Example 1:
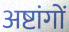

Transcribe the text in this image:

अष्टांगों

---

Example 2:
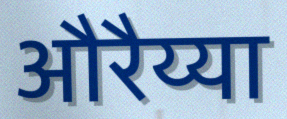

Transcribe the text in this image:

औरैय्या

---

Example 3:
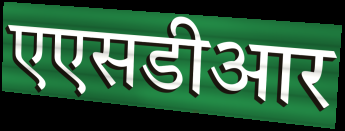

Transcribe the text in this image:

एएसडीआर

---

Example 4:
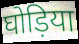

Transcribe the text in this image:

घोड़िया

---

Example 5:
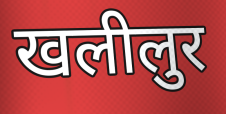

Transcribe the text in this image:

खलीलुर